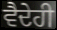
ਵੈਦੇਹੀ